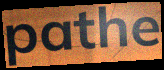
pathe